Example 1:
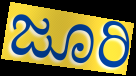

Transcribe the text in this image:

ಜೂರಿ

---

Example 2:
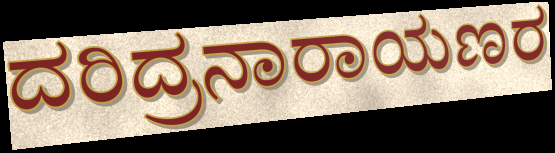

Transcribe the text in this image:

ದರಿದ್ರನಾರಾಯಣರ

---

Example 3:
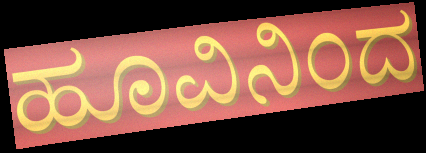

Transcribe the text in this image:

ಹೂವಿನಿಂದ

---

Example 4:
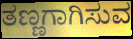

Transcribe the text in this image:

ತಣ್ಣಗಾಗಿಸುವ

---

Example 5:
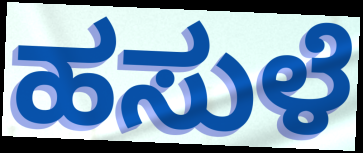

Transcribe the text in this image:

ಹಸುಳೆ